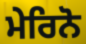
ਮੇਰਿਨੋ